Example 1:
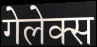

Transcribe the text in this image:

गेलेक्स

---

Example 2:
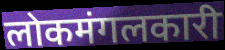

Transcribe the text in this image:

लोकमंगलकारी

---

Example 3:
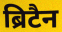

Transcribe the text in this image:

ब्रिटैन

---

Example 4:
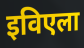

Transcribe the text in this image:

इविएला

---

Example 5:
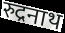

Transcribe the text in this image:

रुद्रनाथ